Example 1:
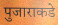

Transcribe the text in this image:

पुजाराकडे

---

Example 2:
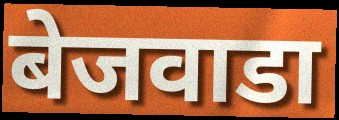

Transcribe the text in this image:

बेजवाडा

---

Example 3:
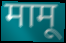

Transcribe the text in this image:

मामू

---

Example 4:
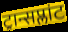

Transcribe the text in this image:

ट्रान्सप्लांट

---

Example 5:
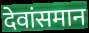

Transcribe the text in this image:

देवांसमान